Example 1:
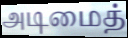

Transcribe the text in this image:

அடிமைத்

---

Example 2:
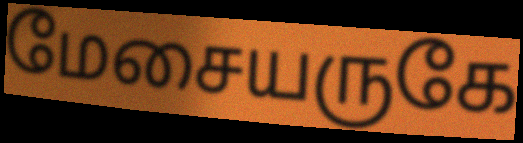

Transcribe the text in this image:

மேசையருகே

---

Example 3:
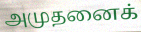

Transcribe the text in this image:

அமுதனைக்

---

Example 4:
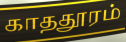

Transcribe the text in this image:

காததூரம்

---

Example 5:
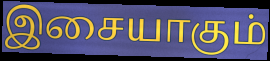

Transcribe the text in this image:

இசையாகும்